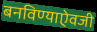
बनविण्याऐवजी